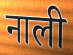
नाली